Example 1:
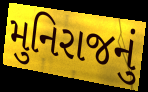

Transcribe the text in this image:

મુનિરાજનું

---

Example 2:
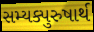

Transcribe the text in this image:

સમ્યક્પુરુષાર્થ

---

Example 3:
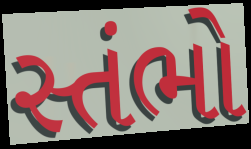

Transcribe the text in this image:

સ્તંભો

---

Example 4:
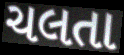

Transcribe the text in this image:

ચલતા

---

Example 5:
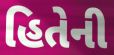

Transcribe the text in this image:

હિતેની